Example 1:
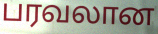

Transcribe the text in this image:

பரவலான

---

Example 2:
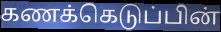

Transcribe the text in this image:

கணக்கெடுப்பின்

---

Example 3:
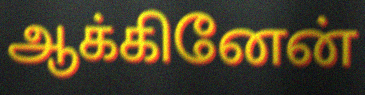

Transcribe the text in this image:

ஆக்கினேன்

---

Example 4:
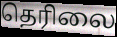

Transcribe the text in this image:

தெரிலை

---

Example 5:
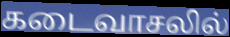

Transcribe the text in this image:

கடைவாசலில்